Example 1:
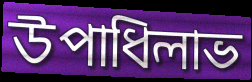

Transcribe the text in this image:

উপাধিলাভ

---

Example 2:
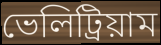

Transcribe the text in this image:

ভেলিট্রিয়াম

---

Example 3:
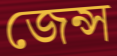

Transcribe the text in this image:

জেন্স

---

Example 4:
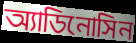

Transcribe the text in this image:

অ্যাডিনোসিন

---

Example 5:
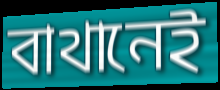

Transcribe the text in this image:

বাথানেই